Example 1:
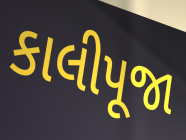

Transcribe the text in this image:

કાલીપૂજા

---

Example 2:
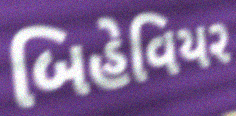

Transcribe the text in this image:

બિહેવિયર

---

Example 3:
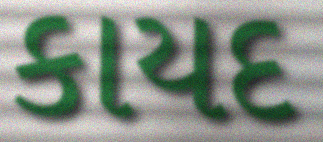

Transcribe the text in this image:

કાયદ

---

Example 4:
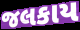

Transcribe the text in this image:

જલકાય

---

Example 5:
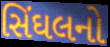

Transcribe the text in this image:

સિંઘલનો